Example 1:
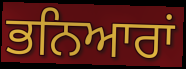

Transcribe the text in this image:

ਭਨਿਆਰਾਂ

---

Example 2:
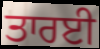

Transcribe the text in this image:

ਤਾਰਈ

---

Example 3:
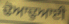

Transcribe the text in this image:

ਢੋਆਢੁਆਈ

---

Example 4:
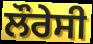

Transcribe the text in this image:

ਲੌਰੇਸੀ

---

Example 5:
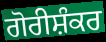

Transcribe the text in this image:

ਗੋਰੀਸ਼ੰਕਰ